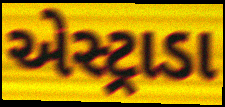
એસ્ટ્રાડા